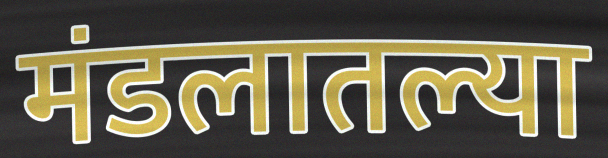
मंडलातल्या